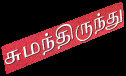
சுமந்திருந்து